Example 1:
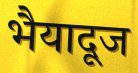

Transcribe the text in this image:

भैयादूज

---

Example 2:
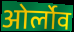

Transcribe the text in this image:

ओर्लोव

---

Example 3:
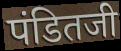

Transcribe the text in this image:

पंडितजी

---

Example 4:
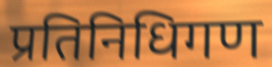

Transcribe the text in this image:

प्रतिनिधिगण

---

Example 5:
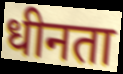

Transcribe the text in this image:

धीनता